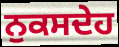
ਨੁਕਸਦੇਹ